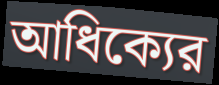
আধিক্যের